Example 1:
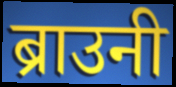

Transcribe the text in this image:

ब्राउनी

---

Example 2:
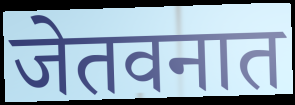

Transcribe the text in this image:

जेतवनात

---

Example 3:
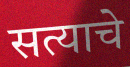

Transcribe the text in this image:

सत्याचे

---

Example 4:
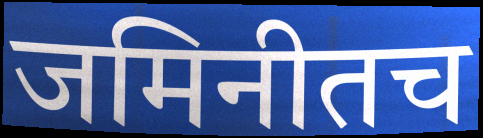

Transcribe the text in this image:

जमिनीतच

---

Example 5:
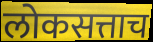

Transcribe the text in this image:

लोकसत्ताच